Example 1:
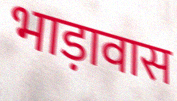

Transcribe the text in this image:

भाड़ावास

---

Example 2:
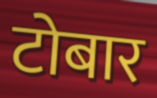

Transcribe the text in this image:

टोबार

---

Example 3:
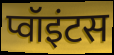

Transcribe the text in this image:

प्वॉइंटस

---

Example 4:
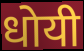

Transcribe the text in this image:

धोयी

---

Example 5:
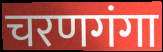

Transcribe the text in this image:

चरणगंगा